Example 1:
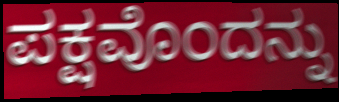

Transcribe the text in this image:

ಪಕ್ಷವೊಂದನ್ನು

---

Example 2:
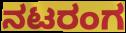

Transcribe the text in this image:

ನಟರಂಗ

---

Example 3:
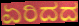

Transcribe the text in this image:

ಏರಿದದ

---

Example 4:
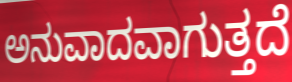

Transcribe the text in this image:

ಅನುವಾದವಾಗುತ್ತದೆ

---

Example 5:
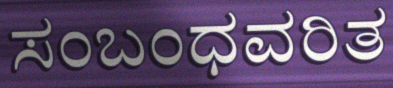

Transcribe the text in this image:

ಸಂಬಂಧವರಿತ